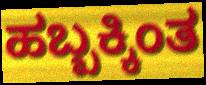
ಹಬ್ಬಕ್ಕಿಂತ